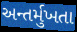
અન્તર્મુખતા